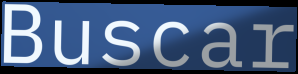
Buscar